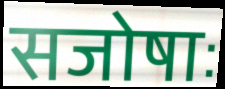
सजोषाः